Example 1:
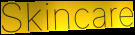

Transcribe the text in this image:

Skincare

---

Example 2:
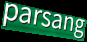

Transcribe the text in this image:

parsang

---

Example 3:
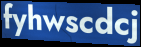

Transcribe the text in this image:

fyhwscdcj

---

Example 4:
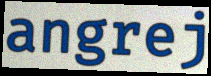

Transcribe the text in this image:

angrej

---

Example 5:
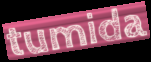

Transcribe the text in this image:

tumida